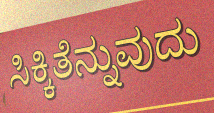
ಸಿಕ್ಕಿತೆನ್ನುವುದು